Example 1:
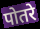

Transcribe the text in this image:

पोतरे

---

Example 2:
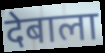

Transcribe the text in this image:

देबाला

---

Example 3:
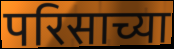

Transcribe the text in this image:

परिसाच्या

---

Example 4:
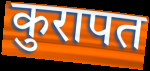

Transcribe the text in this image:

कुरापत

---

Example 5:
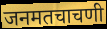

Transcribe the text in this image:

जनमतचाचणी